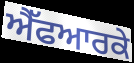
ਐੱਫਆਰਕੇ